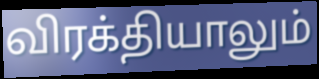
விரக்தியாலும்